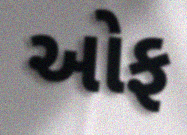
ઓફ